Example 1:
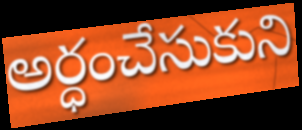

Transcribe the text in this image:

అర్ధంచేసుకుని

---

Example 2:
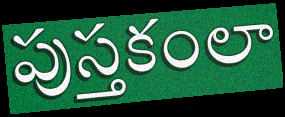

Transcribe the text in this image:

పుస్తకంలా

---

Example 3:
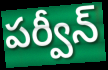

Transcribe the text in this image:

పర్వీన్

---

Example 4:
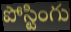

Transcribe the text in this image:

పోస్టింగు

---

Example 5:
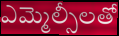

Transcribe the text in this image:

ఎమ్మెల్సీలతో